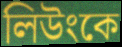
লিউংকে